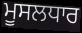
ਮੂਸਲਧਾਰ